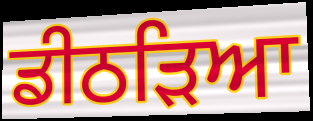
ਡੀਠੜਿਆ